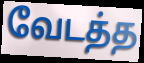
வேடத்த